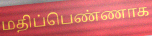
மதிப்பெண்ணாக